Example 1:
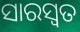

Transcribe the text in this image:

ସାରସ୍ବତ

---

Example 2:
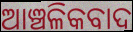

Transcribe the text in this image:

ଆଞ୍ଚଳିକବାଦ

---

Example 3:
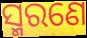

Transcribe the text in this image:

ସ୍ମରଣେ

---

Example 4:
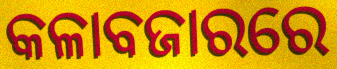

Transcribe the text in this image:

କଳାବଜାରରେ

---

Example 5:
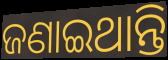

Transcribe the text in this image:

ଜଣାଇଥାନ୍ତି